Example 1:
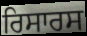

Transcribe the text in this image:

ਰਿਸਾਰਸ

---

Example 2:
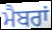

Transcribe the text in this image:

ਮੈਬਰਾਂ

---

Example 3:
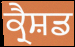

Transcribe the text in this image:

ਕ੍ਰੈਸ਼ਡ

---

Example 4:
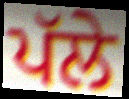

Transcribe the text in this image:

ਪੱਲੇ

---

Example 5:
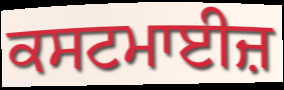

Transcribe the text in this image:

ਕਸਟਮਾਈਜ਼